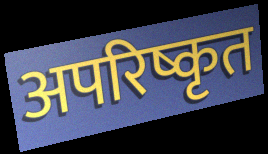
अपरिष्कृत